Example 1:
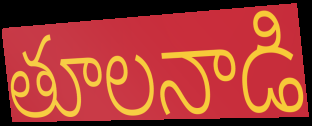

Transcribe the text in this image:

తూలనాడి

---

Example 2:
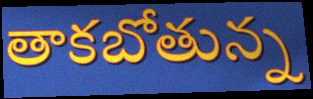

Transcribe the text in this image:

తాకబోతున్న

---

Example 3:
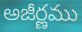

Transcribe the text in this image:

అజీర్ణము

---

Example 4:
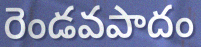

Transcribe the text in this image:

రెండవపాదం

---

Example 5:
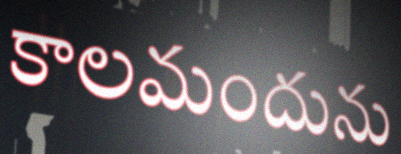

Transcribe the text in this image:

కాలమందును